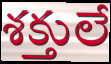
శక్తులే